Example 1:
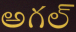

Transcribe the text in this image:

అగల్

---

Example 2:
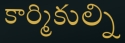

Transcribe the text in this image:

కార్మికుల్ని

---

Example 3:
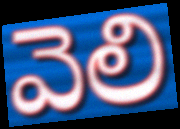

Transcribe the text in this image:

వెలి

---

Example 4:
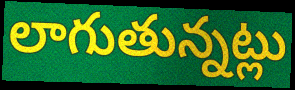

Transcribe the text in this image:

లాగుతున్నట్లు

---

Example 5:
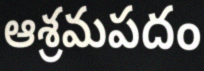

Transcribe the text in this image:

ఆశ్రమపదం